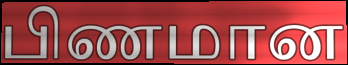
பிணமான